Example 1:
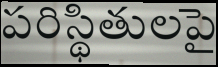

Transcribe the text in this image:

పరిస్థితులపై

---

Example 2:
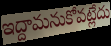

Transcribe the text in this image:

ఇద్దామనుకోవట్లేదు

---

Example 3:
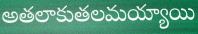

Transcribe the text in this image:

అతలాకుతలమయ్యాయి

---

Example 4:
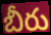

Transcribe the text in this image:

బీరు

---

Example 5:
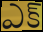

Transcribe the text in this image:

ఎక్